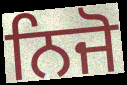
ਨਿਜੋ